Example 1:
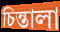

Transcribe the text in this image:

চিন্তালা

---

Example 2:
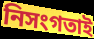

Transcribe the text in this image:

নিসংগতাই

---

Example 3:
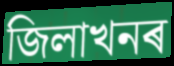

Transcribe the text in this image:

জিলাখনৰ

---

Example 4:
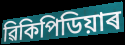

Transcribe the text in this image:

ৱিকিপিডিয়াৰ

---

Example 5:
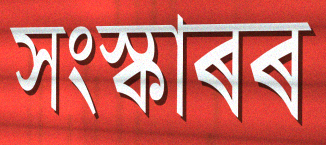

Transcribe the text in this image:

সংস্কাৰৰ